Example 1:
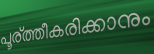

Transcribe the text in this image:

പൂര്ത്തീകരിക്കാനും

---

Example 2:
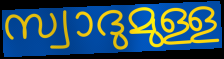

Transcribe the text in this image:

സ്വാദുമുള്ള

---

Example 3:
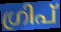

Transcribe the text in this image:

ഗ്രിപ്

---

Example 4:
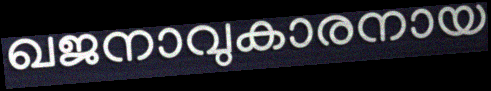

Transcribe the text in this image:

ഖജനാവുകാരനായ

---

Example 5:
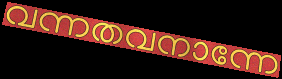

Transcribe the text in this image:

വന്നതവനാന്നേ